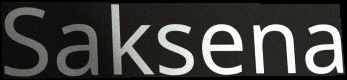
Saksena